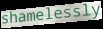
shamelessly